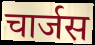
चार्जस